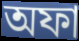
অফা